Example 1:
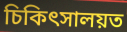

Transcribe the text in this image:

চিকিৎসালয়ত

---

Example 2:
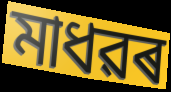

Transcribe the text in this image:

মাধৱৰ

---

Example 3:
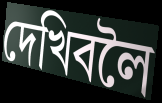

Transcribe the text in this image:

দেখিবলৈ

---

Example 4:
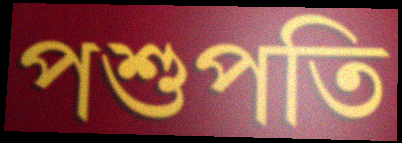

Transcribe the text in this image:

পশুপতি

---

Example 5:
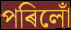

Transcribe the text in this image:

পৰিলোঁ